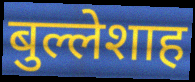
बुल्लेशाह